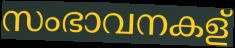
സംഭാവനകള്